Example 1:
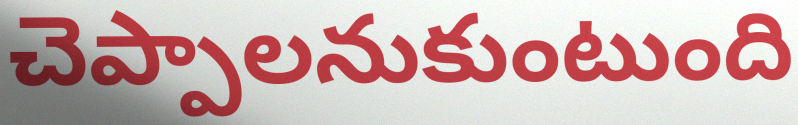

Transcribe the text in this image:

చెప్పాలనుకుంటుంది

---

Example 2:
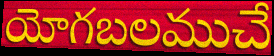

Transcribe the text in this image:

యోగబలముచే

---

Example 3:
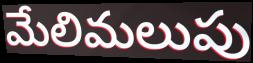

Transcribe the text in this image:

మేలిమలుపు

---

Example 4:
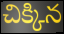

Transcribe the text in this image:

చిక్కిన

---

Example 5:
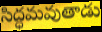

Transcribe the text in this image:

సిద్ధమవుతాడు